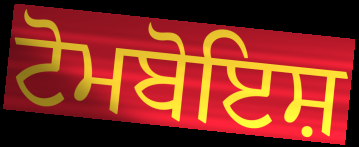
ਟੋਮਬੋਇਸ਼